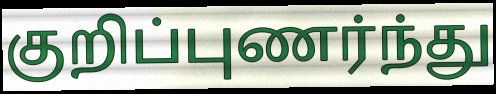
குறிப்புணர்ந்து